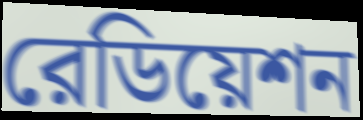
রেডিয়েশন